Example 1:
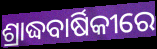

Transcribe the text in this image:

ଶ୍ରାଦ୍ଧବାର୍ଷିକୀରେ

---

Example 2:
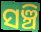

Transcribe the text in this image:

ସଞ୍ଚି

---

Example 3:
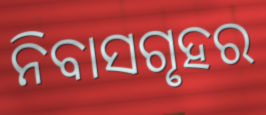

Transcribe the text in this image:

ନିବାସଗୃହର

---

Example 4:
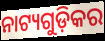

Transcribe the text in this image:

ନାଟ୍ୟଗୁଡ଼ିକର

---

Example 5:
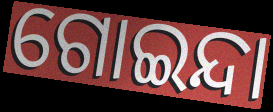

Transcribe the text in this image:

ଗୋଇନ୍ଦା